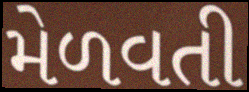
મેળવતી